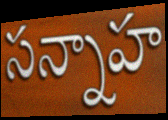
సన్నాహ